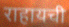
राहायची